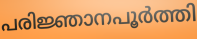
പരിജ്ഞാനപൂർത്തി